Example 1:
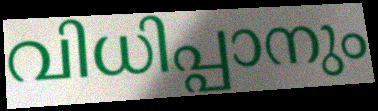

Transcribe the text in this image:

വിധിപ്പാനും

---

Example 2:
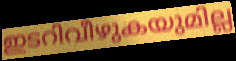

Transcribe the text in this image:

ഇടറിവീഴുകയുമില്ല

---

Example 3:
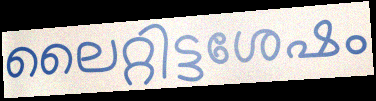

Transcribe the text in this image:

ലൈറ്റിട്ടശേഷം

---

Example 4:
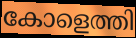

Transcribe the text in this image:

കോളെത്തി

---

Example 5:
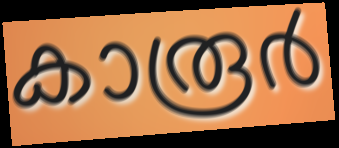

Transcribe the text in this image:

കാരൂർ